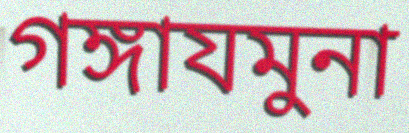
গঙ্গাযমুনা